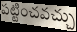
పట్టించవచ్చు